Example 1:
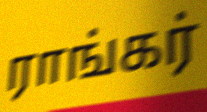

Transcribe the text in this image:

ராங்கர்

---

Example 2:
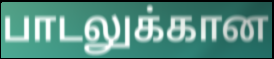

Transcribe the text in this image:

பாடலுக்கான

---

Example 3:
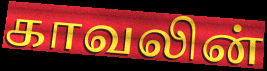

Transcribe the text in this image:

காவலின்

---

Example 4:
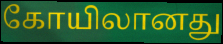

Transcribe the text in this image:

கோயிலானது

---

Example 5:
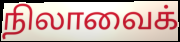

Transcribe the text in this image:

நிலாவைக்